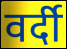
वर्दी